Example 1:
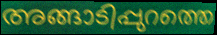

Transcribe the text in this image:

അങ്ങാടിപ്പുറത്തെ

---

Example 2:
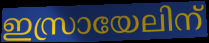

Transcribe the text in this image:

ഇസ്രായേലിന്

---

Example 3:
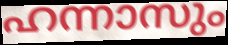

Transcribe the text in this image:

ഹന്നാസും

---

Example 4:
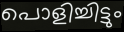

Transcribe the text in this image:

പൊളിച്ചിട്ടും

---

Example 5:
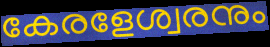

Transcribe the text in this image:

കേരളേശ്വരനും